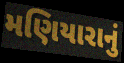
મણિયારાનું